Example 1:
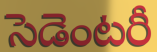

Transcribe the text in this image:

సెడెంటరీ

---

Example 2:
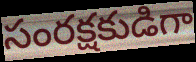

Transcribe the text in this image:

సంరక్షకుడిగా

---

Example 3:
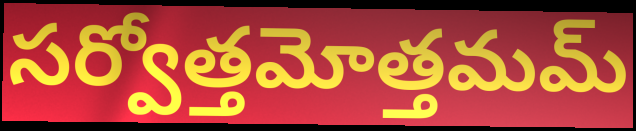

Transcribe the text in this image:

సర్వోత్తమోత్తమమ్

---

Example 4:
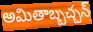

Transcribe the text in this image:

అమితాబ్బచ్చన్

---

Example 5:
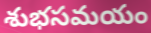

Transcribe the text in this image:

శుభసమయం